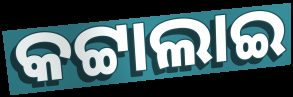
କଟ୍ଟାଲାଇ